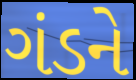
ગંડને